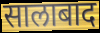
सालाबाद